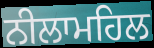
ਨੀਲਾਮਹਿਲ